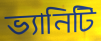
ভ্যানিটি